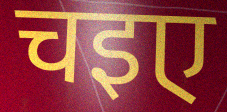
चइए